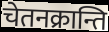
चेतनक्रान्ति